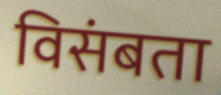
विसंबता